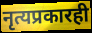
नृत्यप्रकारही